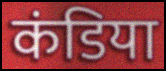
कंडिया